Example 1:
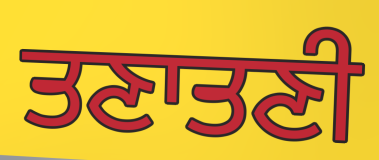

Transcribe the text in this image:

ਤਣਾਤਣੀ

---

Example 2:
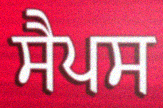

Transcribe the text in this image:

ਸੈਪਸ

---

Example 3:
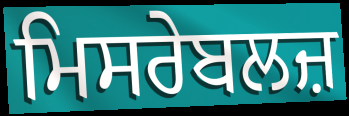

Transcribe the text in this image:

ਮਿਸਰੇਬਲਜ਼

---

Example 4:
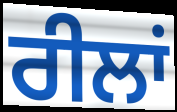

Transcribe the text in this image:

ਰੀਲਾਂ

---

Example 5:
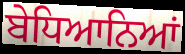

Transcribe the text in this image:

ਬੇਧਿਆਨਿਆਂ